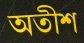
অতীশ